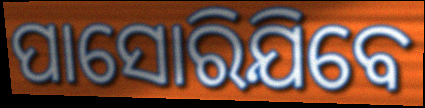
ପାସୋରିଯିବେ